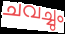
ചവച്ചും